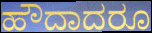
ಹೌದಾದರೂ